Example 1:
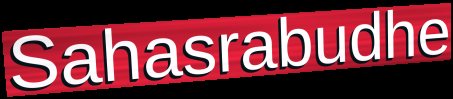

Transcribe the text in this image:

Sahasrabudhe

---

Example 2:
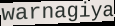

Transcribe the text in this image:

warnagiya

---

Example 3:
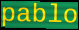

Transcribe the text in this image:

pablo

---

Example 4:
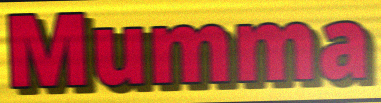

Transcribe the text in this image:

Mumma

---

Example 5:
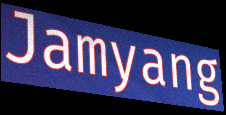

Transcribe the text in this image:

Jamyang